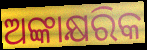
ଅଙ୍କାକ୍ଷରିକ